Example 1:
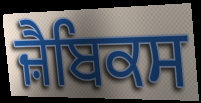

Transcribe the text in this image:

ਜ਼ੈਬਿਕਸ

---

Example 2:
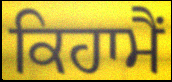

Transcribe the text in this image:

ਕਿਹਾਮੈਂ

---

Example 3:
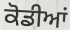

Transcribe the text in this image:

ਕੋਡੀਆਂ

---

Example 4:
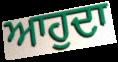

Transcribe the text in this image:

ਆਹੁਦਾ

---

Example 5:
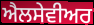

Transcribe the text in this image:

ਐਲਸੇਵੀਅਰ